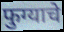
फुग्याचे